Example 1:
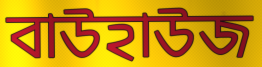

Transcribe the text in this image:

বাউহাউজ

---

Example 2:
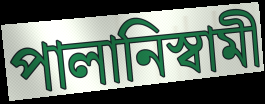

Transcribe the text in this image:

পালানিস্বামী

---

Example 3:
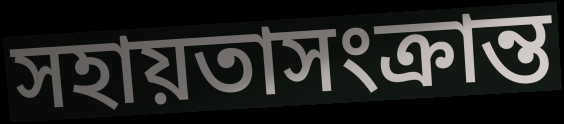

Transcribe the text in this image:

সহায়তাসংক্রান্ত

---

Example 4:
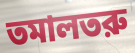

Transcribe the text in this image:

তমালতরু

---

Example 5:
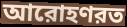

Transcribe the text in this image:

আরোহণরত